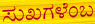
ಸುಖಗಳೆಂಬ